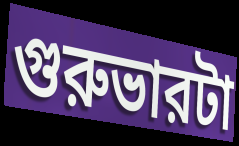
গুরুভারটা